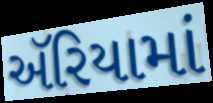
ઍરિયામાં